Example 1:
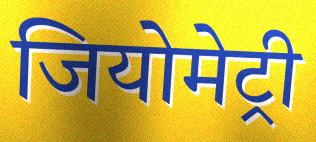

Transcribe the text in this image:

जियोमेट्री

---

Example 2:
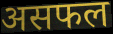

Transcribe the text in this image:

असफल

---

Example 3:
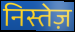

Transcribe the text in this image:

निस्तेज़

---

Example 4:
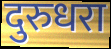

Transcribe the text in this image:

दुरुधरा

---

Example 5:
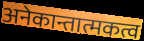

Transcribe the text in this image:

अनेकान्तात्मकत्व